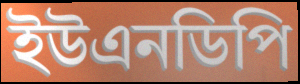
ইউএনডিপি